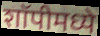
शॉपीमध्ये